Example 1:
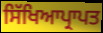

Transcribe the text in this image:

ਸਿੱਖਿਆਪ੍ਰਾਪਤ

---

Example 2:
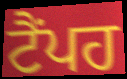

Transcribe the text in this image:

ਟੈਂਪਹ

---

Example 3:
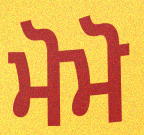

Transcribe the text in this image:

ਮੋਮੋ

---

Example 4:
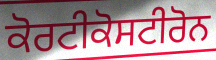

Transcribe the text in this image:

ਕੋਰਟੀਕੋਸਟੀਰੋਨ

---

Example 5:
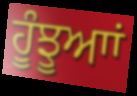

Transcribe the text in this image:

ਹੂੰਝੂਆਾਂ